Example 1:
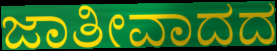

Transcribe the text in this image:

ಜಾತೀವಾದದ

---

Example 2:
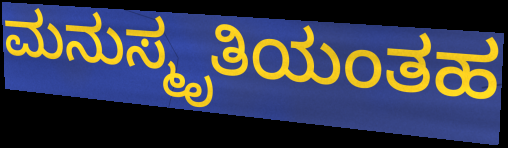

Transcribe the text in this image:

ಮನುಸ್ಮೃತಿಯಂತಹ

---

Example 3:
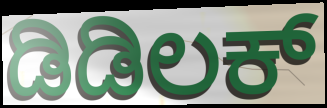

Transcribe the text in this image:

ಡಿಡಿಲಕ್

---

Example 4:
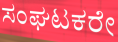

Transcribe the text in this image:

ಸಂಘಟಕರೇ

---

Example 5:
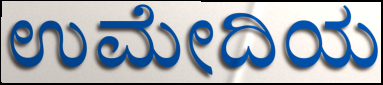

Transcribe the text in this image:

ಉಮೇದಿಯ